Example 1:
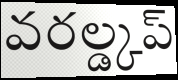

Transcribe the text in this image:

వరల్డ్కప్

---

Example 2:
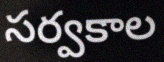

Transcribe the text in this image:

సర్వకాల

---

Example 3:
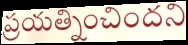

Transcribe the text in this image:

ప్రయత్నించిందని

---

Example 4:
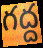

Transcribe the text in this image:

గద్ద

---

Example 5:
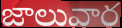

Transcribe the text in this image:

జాలువార